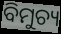
ବିମୁଚ୍ୟ